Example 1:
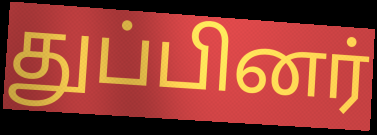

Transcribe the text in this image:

துப்பினர்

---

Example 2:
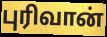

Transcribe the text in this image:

புரிவான்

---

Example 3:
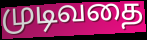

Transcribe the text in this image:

முடிவதை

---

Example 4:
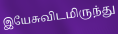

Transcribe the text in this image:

இயேசுவிடமிருந்து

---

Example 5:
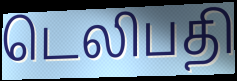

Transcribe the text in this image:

டெலிபதி